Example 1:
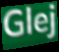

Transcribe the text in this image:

Glej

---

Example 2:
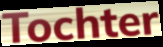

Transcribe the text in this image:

Tochter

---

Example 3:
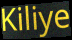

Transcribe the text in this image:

Kiliye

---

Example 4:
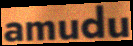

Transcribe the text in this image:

amudu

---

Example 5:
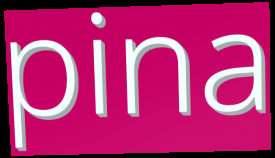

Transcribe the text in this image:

pina